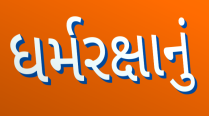
ધર્મરક્ષાનું